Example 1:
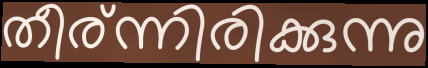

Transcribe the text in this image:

തീര്ന്നിരിക്കുന്നു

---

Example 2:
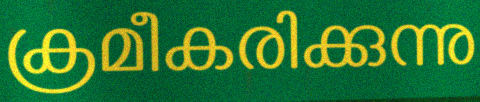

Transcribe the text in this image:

ക്രമീകരിക്കുന്നു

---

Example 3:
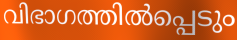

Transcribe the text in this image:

വിഭാഗത്തിൽപ്പെടും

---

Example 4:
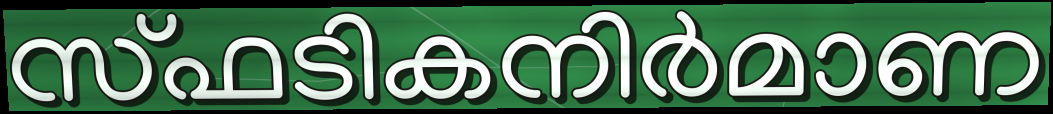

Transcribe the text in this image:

സ്ഫടികനിർമാണ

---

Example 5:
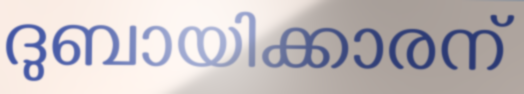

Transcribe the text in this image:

ദുബായിക്കാരന്